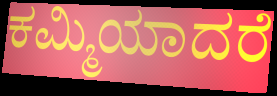
ಕಮ್ಮಿಯಾದರೆ